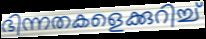
ഭിന്നതകളെക്കുറിച്ച്